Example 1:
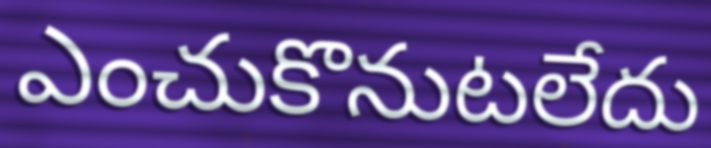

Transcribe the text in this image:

ఎంచుకొనుటలేదు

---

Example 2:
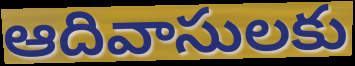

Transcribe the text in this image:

ఆదివాసులకు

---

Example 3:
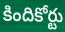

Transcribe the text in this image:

కిందికోర్టు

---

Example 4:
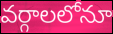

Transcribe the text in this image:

వర్గాలలోనూ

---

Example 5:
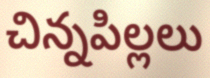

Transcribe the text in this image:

చిన్నపిల్లలు